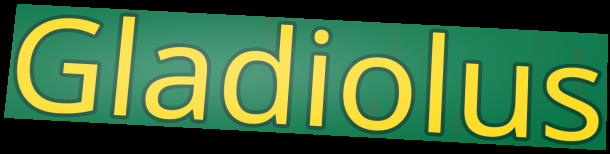
Gladiolus